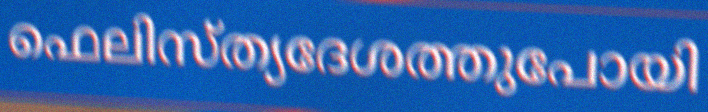
ഫെലിസ്ത്യദേശത്തുപോയി